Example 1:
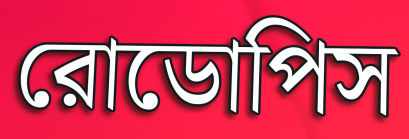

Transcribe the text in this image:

রোডোপিস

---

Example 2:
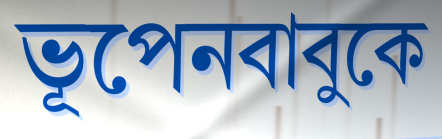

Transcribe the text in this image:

ভূপেনবাবুকে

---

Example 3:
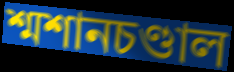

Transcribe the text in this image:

শ্মশানচণ্ডাল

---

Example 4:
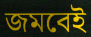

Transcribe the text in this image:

জমবেই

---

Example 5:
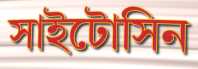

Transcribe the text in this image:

সাইটোসিন